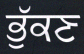
ਭੁੱਕਣ